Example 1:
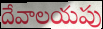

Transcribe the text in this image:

దేవాలయపు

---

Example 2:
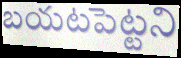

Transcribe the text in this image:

బయటపెట్టని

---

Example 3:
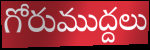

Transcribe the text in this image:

గోరుముద్దలు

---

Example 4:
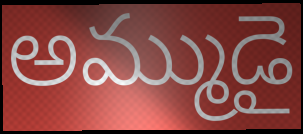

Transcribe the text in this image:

అమ్ముడై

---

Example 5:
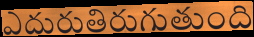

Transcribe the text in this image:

ఎదురుతిరుగుతుంది